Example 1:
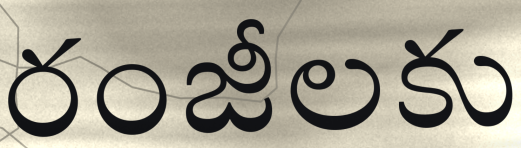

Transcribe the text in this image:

రంజీలకు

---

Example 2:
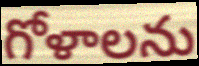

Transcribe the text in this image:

గోళాలను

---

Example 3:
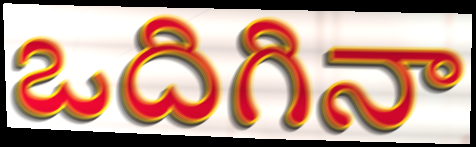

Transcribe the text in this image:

ఒదిగినా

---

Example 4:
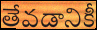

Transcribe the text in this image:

తేవడానికీ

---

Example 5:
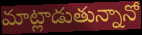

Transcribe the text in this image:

మాట్లాడుతున్నానో